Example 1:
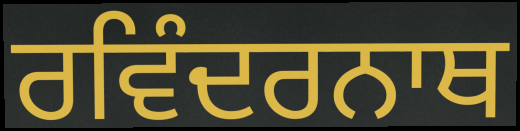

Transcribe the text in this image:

ਰਵਿੰਦਰਨਾਥ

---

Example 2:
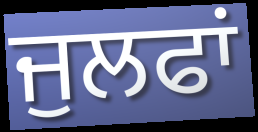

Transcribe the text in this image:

ਜੁਲਫਾਂ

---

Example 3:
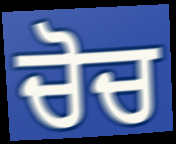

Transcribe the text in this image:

ਚੋਚ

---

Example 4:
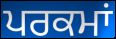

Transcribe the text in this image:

ਪਰਕਮਾਂ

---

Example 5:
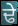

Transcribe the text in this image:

ਢੇ